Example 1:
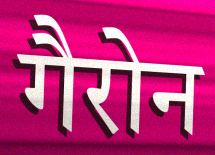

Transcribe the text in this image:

गैरोन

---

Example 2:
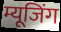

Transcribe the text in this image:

म्यूजिंग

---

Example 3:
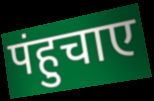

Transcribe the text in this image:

पंहुचाए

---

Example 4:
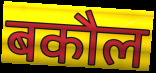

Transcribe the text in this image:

बकौल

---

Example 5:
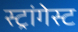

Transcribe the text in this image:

स्ट्रांगेस्ट